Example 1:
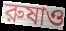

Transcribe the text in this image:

রুষাও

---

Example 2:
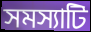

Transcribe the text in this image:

সমস্যাটি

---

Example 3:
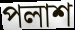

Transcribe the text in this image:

পলাশ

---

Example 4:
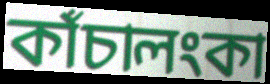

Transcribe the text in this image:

কাঁচালংকা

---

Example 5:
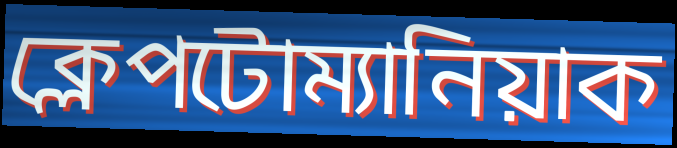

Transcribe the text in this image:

ক্লেপটোম্যানিয়াক